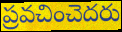
ప్రవచించెదరు